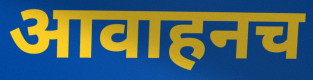
आवाहनच